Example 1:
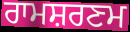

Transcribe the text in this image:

ਰਾਮਸ਼ਰਣਮ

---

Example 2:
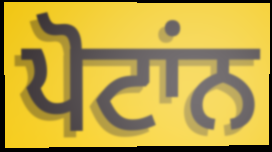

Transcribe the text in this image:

ਪੋਟਾਂਨ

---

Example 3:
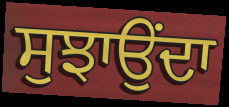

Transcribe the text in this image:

ਸੁਝਾਉਂਦਾ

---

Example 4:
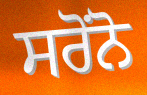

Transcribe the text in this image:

ਸਰੋਂਨੋ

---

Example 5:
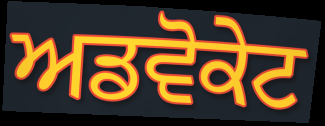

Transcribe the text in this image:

ਅਡਵੋਕੇਟ